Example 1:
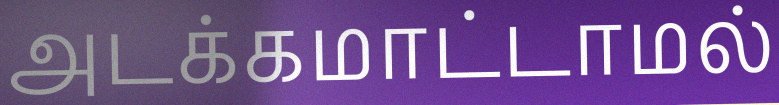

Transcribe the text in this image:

அடக்கமாட்டாமல்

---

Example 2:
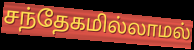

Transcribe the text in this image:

சந்தேகமில்லாமல்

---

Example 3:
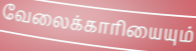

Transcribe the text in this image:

வேலைக்காரியையும்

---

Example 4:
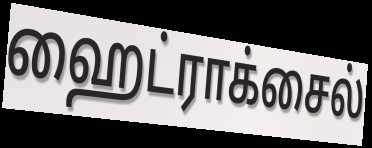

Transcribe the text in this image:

ஹைட்ராக்சைல்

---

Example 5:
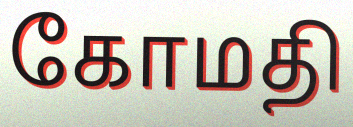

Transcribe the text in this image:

கோமதி